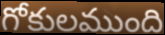
గోకులముంది